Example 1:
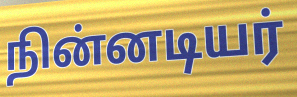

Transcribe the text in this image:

நின்னடியர்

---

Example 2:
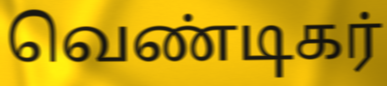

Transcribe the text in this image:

வெண்டிகர்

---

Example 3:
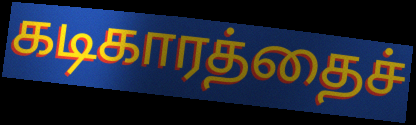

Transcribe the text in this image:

கடிகாரத்தைச்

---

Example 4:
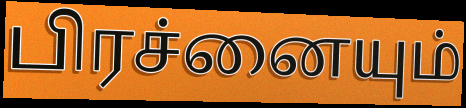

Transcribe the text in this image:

பிரச்னையும்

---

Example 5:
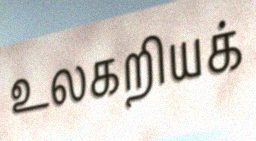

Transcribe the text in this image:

உலகறியக்